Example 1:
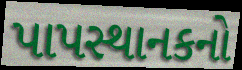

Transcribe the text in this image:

પાપસ્થાનકનો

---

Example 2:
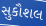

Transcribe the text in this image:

સુકૌશલ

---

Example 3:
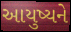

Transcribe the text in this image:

આયુષ્યને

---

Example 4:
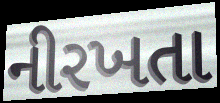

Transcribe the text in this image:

નીરખતા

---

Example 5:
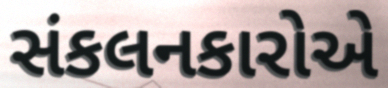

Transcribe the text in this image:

સંકલનકારોએ